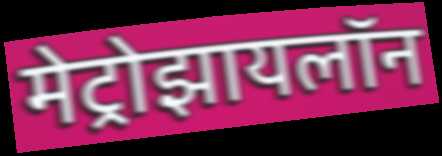
मेट्रोझायलॉन